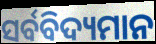
ସର୍ବବିଦ୍ୟମାନ